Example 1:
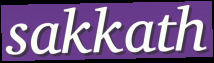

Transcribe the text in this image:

sakkath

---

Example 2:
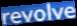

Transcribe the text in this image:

revolve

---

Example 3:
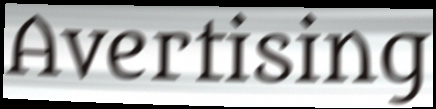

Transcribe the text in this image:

Avertising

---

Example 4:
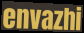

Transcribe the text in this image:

envazhi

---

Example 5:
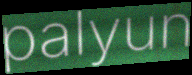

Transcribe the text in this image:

palyun